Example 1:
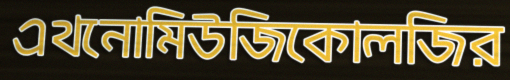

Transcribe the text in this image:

এথনোমিউজিকোলজির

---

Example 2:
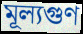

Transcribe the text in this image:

মূল্যগুণ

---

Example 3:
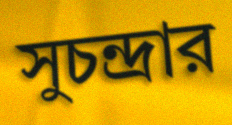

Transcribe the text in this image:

সুচন্দ্রার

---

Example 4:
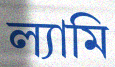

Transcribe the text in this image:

ল্যামি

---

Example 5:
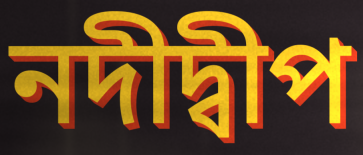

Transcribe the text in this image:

নদীদ্বীপ